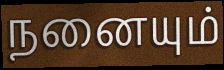
நனையும்